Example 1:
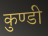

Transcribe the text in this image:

कुण्डी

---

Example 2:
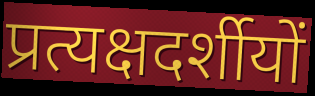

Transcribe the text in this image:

प्रत्यक्षदर्शीयों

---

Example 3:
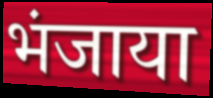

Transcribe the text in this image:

भंजाया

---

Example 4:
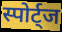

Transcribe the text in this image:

स्पोर्ट्ज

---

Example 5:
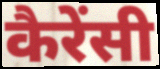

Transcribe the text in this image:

कैरेंसी